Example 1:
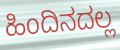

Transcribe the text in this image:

ಹಿಂದಿನದಲ್ಲ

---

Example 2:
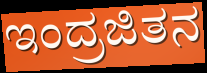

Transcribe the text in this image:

ಇಂದ್ರಜಿತನ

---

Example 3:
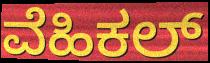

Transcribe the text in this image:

ವೆಹಿಕಲ್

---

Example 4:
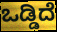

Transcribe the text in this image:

ಒಡ್ಡಿದೆ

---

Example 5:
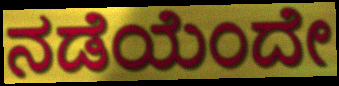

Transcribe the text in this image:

ನಡೆಯೆಂದೇ